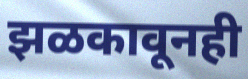
झळकावूनही